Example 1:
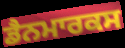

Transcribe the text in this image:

ਡੈਨਮਾਰਕਸ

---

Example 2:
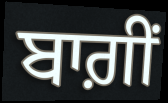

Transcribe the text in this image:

ਬਾਗ਼ੀਂ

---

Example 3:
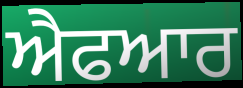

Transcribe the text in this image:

ਐਫਆਰ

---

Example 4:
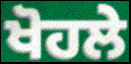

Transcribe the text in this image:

ਖੋਹਲੇ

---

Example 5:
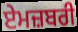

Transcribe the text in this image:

ਏਮਜ਼ਬਰੀ